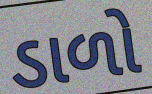
ડાળો